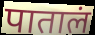
पातालं